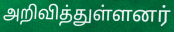
அறிவித்துள்ளனர்